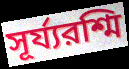
সূর্য্যরশ্মি